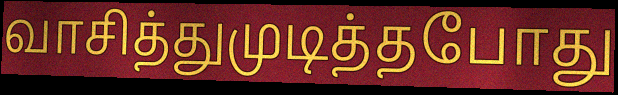
வாசித்துமுடித்தபோது